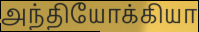
அந்தியோக்கியா